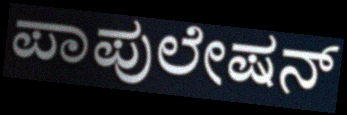
ಪಾಪುಲೇಷನ್